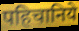
पहिचानिये